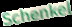
Schenkel